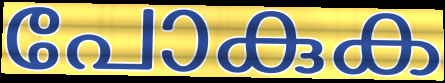
പോകുക